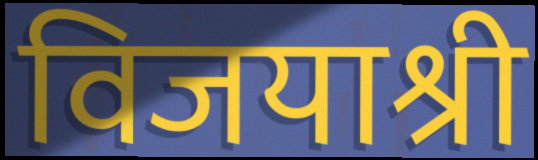
विजयाश्री